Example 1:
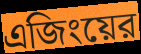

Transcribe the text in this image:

এজিংয়ের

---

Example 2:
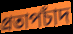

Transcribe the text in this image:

প্রতাপচাঁদ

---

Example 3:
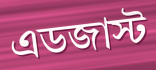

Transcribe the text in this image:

এডজাস্ট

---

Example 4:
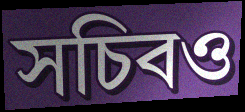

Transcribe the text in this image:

সচিবও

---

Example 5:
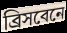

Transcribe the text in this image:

ব্রিসবেনে